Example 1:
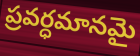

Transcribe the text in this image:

ప్రవర్ధమానమై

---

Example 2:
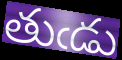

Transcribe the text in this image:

తుఁడు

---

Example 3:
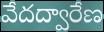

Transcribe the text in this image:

వేదద్వారేణ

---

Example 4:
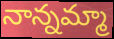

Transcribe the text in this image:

నాన్నమ్మా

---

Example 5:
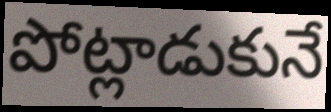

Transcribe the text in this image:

పోట్లాడుకునే